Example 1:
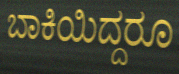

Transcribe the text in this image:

ಬಾಕಿಯಿದ್ದರೂ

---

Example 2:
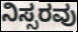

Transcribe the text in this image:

ನಿಸ್ಸರವು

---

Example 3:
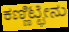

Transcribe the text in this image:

ಕಣ್ಣಿಟ್ಟೇನು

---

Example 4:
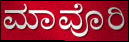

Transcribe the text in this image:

ಮಾವೊರಿ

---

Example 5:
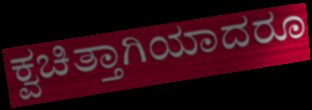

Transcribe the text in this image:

ಕ್ವಚಿತ್ತಾಗಿಯಾದರೂ